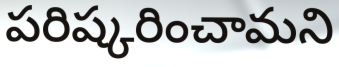
పరిష్కరించామని